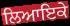
ਲਿਆਇਕੇ